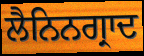
ਲੈਨਿਨਗ੍ਰਾਦ